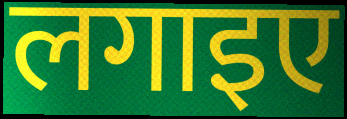
लगाइए